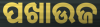
ପଖାଉଜ